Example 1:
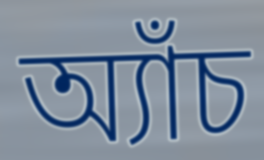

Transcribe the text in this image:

অ্যাঁচ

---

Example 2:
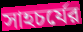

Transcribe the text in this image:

সাহচর্যের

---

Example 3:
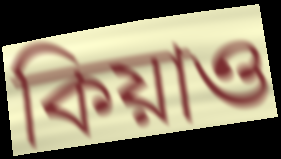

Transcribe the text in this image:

কিয়াও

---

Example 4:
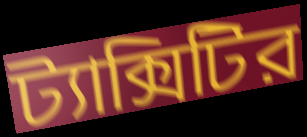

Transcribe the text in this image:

ট্যাক্সিটির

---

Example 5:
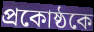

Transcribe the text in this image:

প্রকোষ্ঠকে